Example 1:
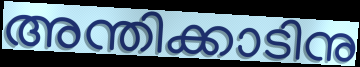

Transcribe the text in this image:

അന്തിക്കാടിനു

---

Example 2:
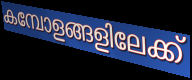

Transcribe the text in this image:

കമ്പോളങ്ങളിലേക്ക്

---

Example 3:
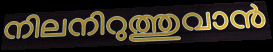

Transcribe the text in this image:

നിലനിറുത്തുവാൻ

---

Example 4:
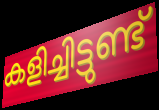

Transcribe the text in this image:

കളിച്ചിട്ടുണ്ട്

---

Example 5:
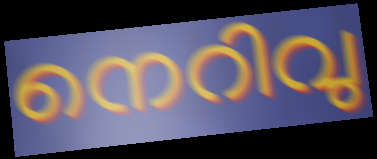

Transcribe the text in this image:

നെറിവു